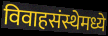
विवाहसंस्थेमध्ये